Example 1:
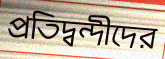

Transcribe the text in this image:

প্রতিদ্বন্দীদের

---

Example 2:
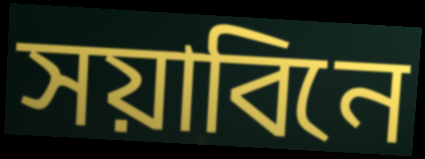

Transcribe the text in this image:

সয়াবিনে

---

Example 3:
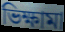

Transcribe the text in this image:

ভিক্ষামা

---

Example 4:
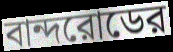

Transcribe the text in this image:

বান্দরোডের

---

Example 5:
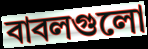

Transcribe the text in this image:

বাবলগুলো